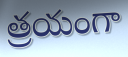
త్రయంగా